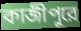
কাজীপুরে